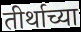
तीर्थाच्या